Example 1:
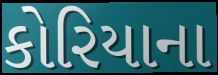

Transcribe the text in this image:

કોરિયાના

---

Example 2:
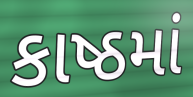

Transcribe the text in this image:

કાષ્ઠમાં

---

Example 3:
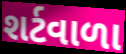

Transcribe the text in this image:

શર્ટવાળા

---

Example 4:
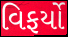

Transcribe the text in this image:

વિફર્યો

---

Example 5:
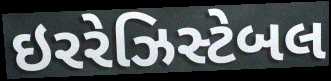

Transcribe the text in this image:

ઇરરેઝિસ્ટેબલ